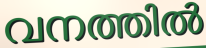
വനത്തിൽ